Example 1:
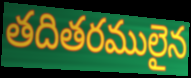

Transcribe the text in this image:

తదితరములైన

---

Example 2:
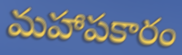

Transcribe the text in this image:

మహాపకారం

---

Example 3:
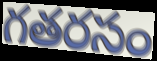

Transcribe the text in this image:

గతరసం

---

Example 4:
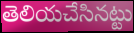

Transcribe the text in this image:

తెలియచేసినట్టు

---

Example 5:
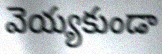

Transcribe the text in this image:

వెయ్యకుండా